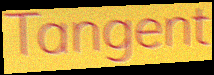
Tangent